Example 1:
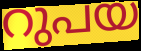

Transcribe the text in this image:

റുപയ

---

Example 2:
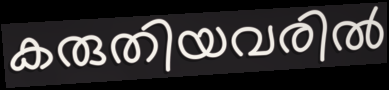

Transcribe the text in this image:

കരുതിയവരിൽ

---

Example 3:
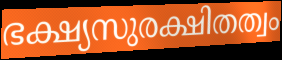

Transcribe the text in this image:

ഭക്ഷ്യസുരക്ഷിതത്വം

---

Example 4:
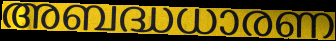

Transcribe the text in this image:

അബദ്ധധാരണ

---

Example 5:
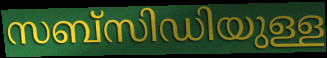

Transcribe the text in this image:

സബ്സിഡിയുള്ള